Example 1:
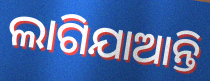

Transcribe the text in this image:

ଲାଗିଯାଆନ୍ତି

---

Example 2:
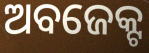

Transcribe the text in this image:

ଅବଜେକ୍ଟ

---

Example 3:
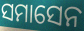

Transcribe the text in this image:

ସମାସେନ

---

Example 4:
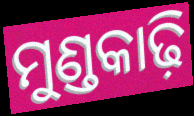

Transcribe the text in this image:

ମୁଣ୍ଡକାଢ଼ି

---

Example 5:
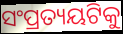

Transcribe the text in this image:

ସଂପ୍ରତ୍ୟୟଟିକୁ